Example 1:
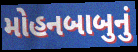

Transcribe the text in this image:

મોહનબાબુનું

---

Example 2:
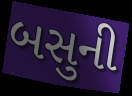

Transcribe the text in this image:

બસુની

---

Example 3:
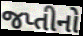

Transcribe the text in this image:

જપ્તીનો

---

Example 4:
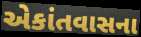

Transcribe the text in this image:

એકાંતવાસના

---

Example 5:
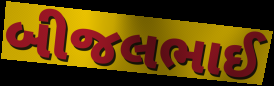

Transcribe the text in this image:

બીજલભાઈ